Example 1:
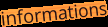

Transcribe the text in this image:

informations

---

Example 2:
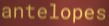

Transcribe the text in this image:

antelopes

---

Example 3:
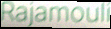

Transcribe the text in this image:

Rajamouli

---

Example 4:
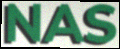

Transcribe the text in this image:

NAS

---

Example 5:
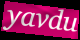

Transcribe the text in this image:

yavdu